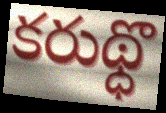
కరుథ్ధొ